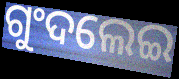
ଗୁଂଦଲେଇ